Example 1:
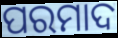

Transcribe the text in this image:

ପରମାଦ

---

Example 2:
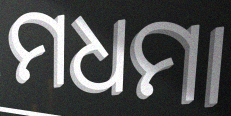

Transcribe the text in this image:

ମଧମା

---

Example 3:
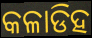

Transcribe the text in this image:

କଳାଡିହ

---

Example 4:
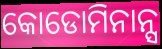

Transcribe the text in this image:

କୋଡୋମିନାନ୍ସ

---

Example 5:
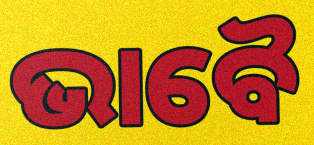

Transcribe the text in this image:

ଭାବୈ